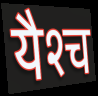
यैश्च